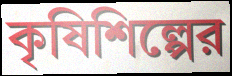
কৃষিশিল্পের